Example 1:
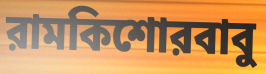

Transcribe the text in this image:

রামকিশোরবাবু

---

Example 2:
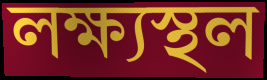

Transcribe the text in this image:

লক্ষ্যস্থল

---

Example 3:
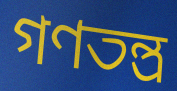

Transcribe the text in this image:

গণতন্ত্র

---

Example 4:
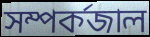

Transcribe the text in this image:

সম্পর্কজাল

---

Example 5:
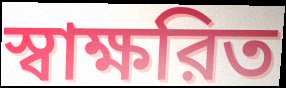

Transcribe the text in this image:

স্বাক্ষরিত